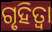
ଗୃହିତ୍ବା